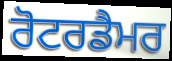
ਰੋਟਰਡੈਮਰ